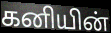
கனியின்